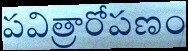
పవిత్రారోపణం